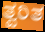
ತ್ವರಿತ